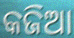
କଜିଆ